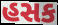
હસક